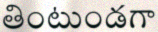
తింటుండగా